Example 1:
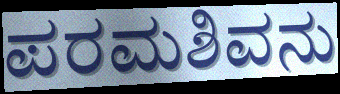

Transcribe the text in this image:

ಪರಮಶಿವನು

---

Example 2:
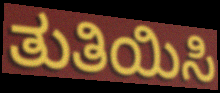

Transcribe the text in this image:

ತುತಿಯಿಸಿ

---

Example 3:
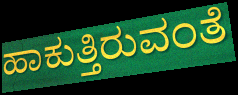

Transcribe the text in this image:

ಹಾಕುತ್ತಿರುವಂತೆ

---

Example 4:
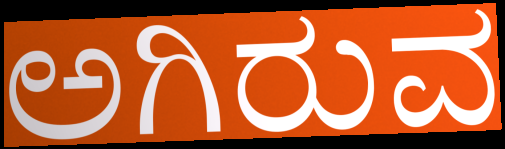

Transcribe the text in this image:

ಅಗಿರುವ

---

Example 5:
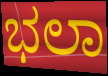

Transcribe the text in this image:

ಭಲಾ